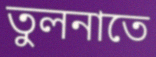
তুলনাতে